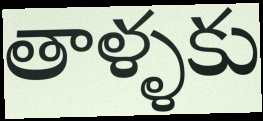
తాళ్ళకు